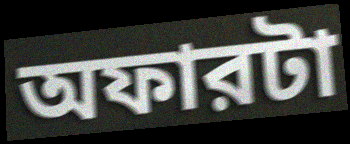
অফারটা